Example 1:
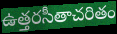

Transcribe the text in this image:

ఉత్తరసీతాచరితం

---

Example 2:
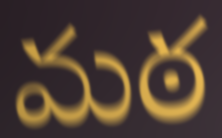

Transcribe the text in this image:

మఠ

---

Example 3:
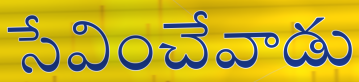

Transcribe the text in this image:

సేవించేవాడు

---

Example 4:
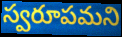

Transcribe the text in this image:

స్వరూపమని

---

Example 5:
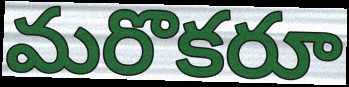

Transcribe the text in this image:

మరొకరూ